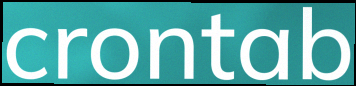
crontab